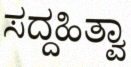
ಸದ್ದಹಿತ್ವಾ